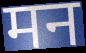
मन